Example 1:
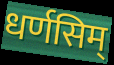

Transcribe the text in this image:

धर्णसिम्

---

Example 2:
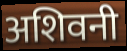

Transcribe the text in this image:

अशिवनी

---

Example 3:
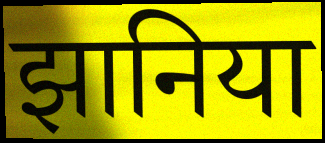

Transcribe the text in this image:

झानिया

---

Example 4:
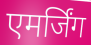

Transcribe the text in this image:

एमर्जिंग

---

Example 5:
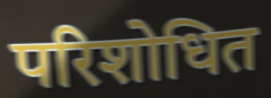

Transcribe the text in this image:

परिशोधित